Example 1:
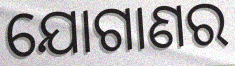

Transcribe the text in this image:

ଯୋଗାଣର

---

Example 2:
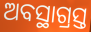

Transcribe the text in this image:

ଅବସ୍ଥାଗ୍ରସ୍ତ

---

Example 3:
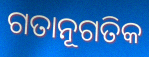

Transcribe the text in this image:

ଗତାନୂଗତିକ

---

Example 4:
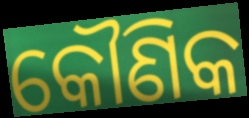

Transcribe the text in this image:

କୌଣିକ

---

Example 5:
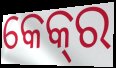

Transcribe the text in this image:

କେକ୍‌ର